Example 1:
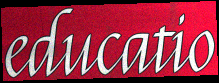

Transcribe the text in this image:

educatio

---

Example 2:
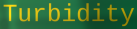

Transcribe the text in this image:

Turbidity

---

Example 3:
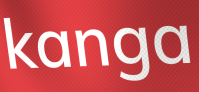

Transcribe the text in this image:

kanga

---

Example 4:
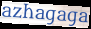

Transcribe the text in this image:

azhagaga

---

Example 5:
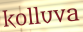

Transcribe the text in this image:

kolluva